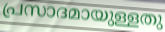
പ്രസാദമായുള്ളതു